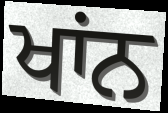
ਖਾਂਨ